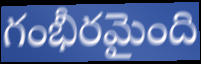
గంభీరమైంది